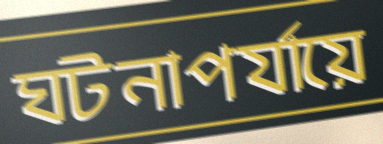
ঘটনাপর্যায়ে